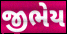
જીભેય